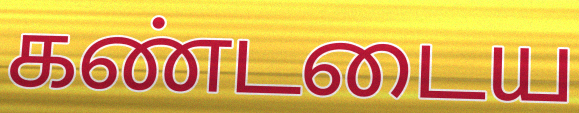
கண்டடைய